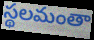
స్థలమంతా